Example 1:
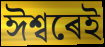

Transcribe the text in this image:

ঈশ্বৰেই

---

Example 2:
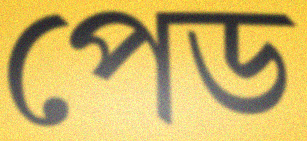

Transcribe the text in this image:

পেড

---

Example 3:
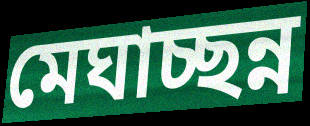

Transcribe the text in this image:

মেঘাচ্ছন্ন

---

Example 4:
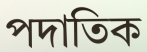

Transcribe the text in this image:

পদাতিক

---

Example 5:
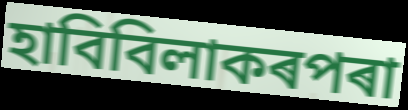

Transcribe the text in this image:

হাবিবিলাকৰপৰা